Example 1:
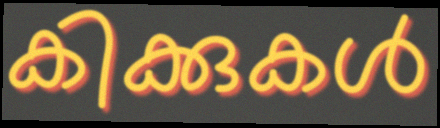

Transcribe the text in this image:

കിക്കുകൾ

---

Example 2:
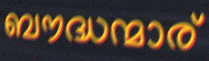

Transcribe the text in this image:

ബൗദ്ധന്മാര്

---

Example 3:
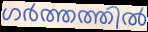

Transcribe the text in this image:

ഗർത്തത്തിൽ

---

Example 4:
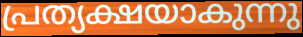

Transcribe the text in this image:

പ്രത്യക്ഷയാകുന്നു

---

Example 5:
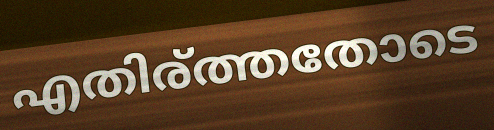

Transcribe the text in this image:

എതിര്ത്തതോടെ